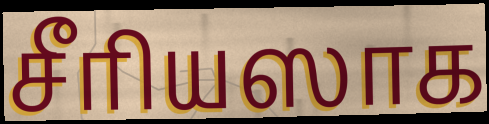
சீரியஸாக